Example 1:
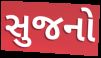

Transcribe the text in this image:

સુજનો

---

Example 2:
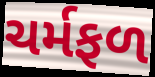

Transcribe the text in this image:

ચર્મફળ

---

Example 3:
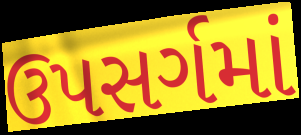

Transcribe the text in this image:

ઉપસર્ગમાં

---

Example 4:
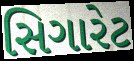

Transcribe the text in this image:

સિગારેટ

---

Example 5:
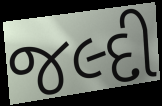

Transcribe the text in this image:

જલ્દી